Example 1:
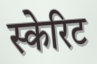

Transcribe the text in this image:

स्केरिट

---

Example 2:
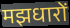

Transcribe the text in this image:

मझधारों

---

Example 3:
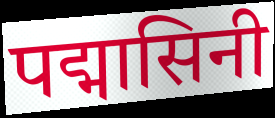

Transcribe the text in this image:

पद्मासिनी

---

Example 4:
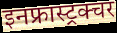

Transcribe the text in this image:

इनफ्रास्ट्रक्चर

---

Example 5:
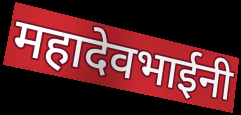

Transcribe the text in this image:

महादेवभाईनी